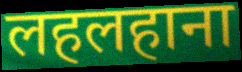
लहलहाना